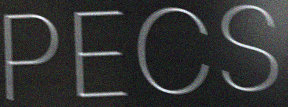
PECS